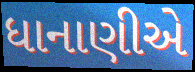
ધાનાણીએ